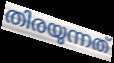
തിരയുന്നത്